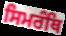
ਸਿਮਰੰਥਿ